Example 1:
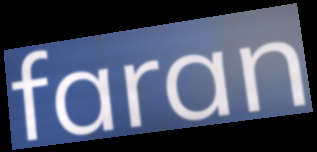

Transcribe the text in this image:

faran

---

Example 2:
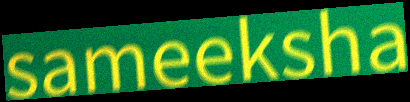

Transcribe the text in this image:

sameeksha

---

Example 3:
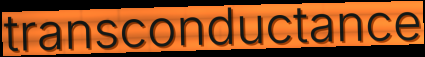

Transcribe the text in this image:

transconductance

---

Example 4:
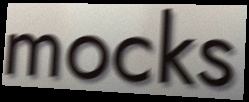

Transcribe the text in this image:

mocks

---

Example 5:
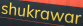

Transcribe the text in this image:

shukrawar